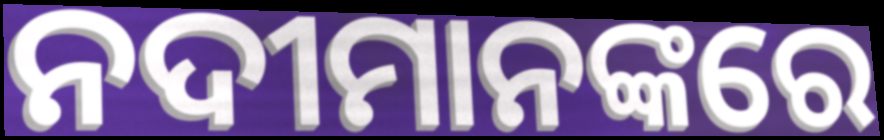
ନଦୀମାନଙ୍କରେ